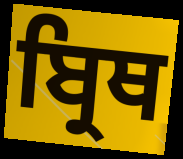
ਬ੍ਰਿਥ